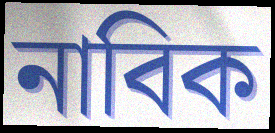
নাবিক